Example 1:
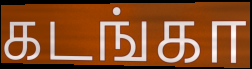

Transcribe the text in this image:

கடங்கா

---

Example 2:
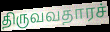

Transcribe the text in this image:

திருவவதாரச்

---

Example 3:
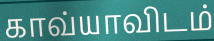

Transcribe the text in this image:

காவ்யாவிடம்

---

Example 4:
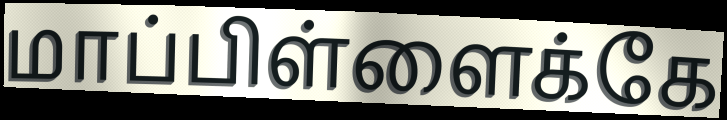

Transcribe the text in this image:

மாப்பிள்ளைக்கே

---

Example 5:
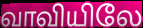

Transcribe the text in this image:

வாவியிலே